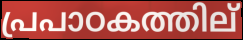
പ്രപാഠകത്തില്